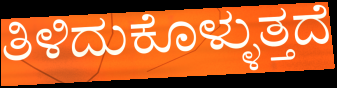
ತಿಳಿದುಕೊಳ್ಳುತ್ತದೆ